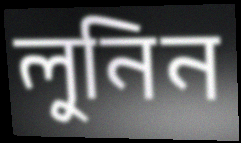
লুনিন